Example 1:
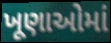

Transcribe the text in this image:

ખૂણાઓમાં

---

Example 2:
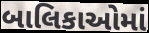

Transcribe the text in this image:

બાલિકાઓમાં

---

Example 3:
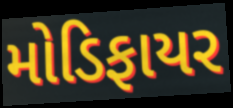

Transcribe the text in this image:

મોડિફાયર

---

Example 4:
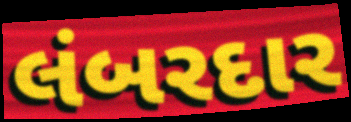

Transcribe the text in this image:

લંબરદાર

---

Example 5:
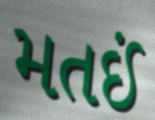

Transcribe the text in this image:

મતઈં